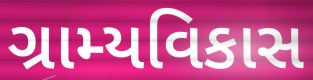
ગ્રામ્યવિકાસ